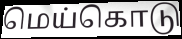
மெய்கொடு